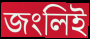
জংলিই